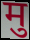
मु